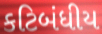
કટિબંધીય